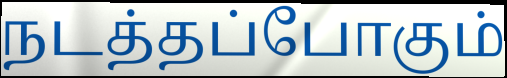
நடத்தப்போகும்